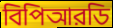
বিপিআরডি